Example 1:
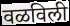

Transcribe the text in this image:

वळविली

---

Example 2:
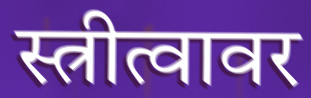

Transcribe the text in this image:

स्त्रीत्वावर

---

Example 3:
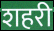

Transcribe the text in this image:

शहरी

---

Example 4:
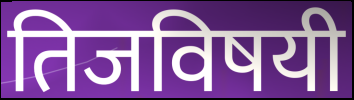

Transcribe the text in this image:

तिजविषयी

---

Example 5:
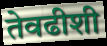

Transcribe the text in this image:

तेवढीशी